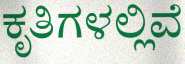
ಕೃತಿಗಳಲ್ಲಿವೆ